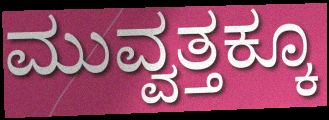
ಮುವ್ವತ್ತಕ್ಕೂ